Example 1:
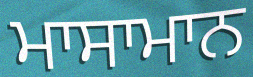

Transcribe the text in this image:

ਮਾਸਾਮਾਨ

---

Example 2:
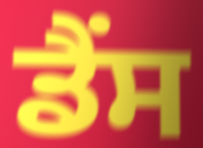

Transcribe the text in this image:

ਡੈਂਸ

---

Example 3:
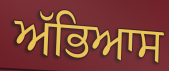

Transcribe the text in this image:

ਅੱਭਿਆਸ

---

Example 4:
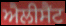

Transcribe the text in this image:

ਐਲੀਸੈਂਟ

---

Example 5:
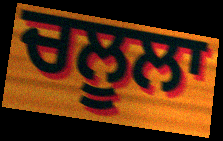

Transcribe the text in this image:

ਚਲੂਲਾ